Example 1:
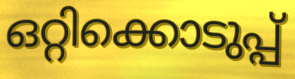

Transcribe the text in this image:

ഒറ്റിക്കൊടുപ്പ്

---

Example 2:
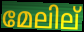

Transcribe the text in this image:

മേലില്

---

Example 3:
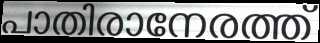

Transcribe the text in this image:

പാതിരാനേരത്ത്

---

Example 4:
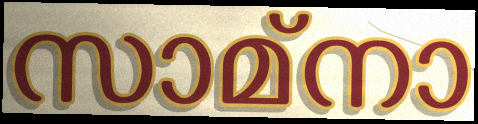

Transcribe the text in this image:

സാമ്നാ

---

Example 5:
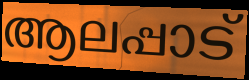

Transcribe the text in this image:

ആലപ്പാട്